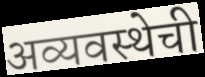
अव्यवस्थेची